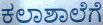
ಕಲಾಶಾಲೆಗೆ